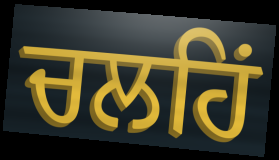
ਚਲਹਿਂ